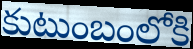
కుటుంబంలోకి